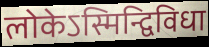
लोकेऽस्मिन्द्विविधा